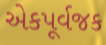
એકપૂર્વજક